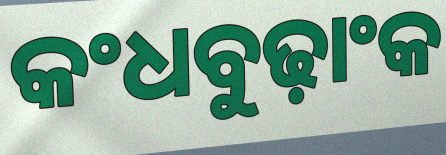
କଂଧବୁଢ଼ାଂକ